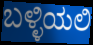
ಬಳ್ಳಿಯಲಿ